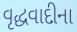
વૃદ્ધવાદીના